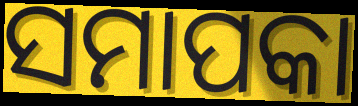
ସମାପକା